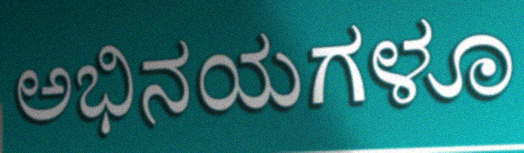
ಅಭಿನಯಗಳೂ